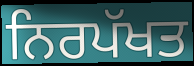
ਨਿਰਪੱਖਤ